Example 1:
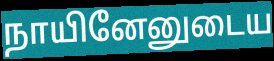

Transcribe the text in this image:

நாயினேனுடைய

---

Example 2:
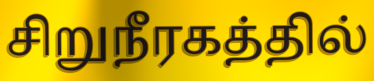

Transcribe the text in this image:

சிறுநீரகத்தில்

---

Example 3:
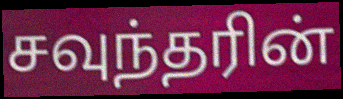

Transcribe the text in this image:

சவுந்தரின்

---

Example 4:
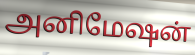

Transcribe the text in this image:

அனிமேஷன்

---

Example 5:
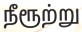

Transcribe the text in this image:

நீரூற்று